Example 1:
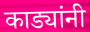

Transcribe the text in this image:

काड्यांनी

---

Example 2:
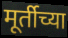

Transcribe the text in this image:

मूर्तीच्या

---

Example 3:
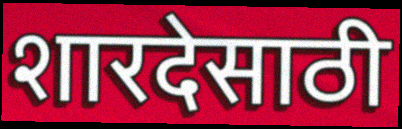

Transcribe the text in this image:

शारदेसाठी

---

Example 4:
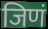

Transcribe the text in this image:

जिणं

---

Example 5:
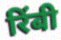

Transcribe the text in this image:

रिंबी